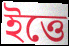
ইত্তে